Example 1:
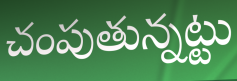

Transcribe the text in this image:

చంపుతున్నట్టు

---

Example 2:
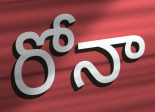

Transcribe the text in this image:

రోనా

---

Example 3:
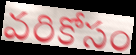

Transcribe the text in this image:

వరికోసం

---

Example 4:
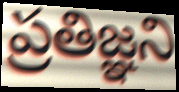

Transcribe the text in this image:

ప్రతిజ్ఞని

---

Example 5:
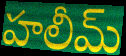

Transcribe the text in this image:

హలీమ్